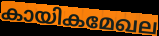
കായികമേഖല